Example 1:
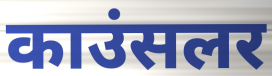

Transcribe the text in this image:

काउंसलर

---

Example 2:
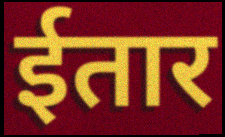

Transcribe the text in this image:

ईतार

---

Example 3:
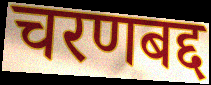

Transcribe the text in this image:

चरणबद्द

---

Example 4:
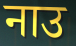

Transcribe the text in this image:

नाउ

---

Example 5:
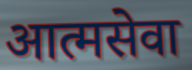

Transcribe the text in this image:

आत्मसेवा